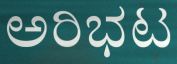
ಅರಿಭಟ